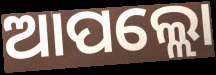
ଆପଲ୍ଲୋ